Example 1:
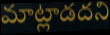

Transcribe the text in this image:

మాట్లాడదని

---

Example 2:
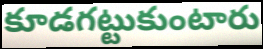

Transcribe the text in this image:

కూడగట్టుకుంటారు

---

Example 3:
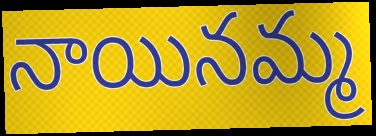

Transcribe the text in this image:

నాయినమ్మ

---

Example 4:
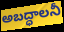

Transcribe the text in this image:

అబద్ధాలనీ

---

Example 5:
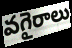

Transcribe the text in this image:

వగైరాలు